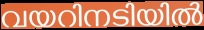
വയറിനടിയിൽ